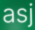
asj